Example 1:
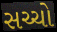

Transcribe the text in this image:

સચ્ચો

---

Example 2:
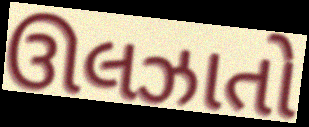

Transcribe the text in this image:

ઊલઝાતો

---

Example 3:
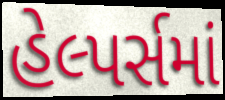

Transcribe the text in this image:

હેલ્પર્સમાં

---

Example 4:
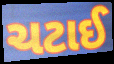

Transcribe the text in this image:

ચટાઈ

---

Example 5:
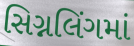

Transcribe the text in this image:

સિગ્નલિંગમાં